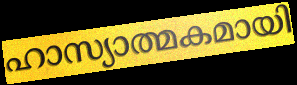
ഹാസ്യാത്മകമായി